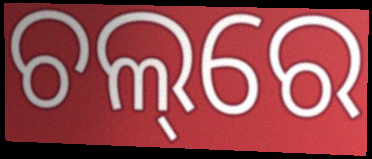
ଚଲ୍‌ରେ